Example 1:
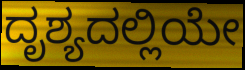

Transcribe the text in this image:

ದೃಶ್ಯದಲ್ಲಿಯೇ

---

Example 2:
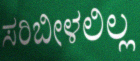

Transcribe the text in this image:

ಸರಿಬೀಳಲಿಲ್ಲ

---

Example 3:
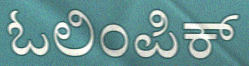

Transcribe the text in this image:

ಓಲಿಂಪಿಕ್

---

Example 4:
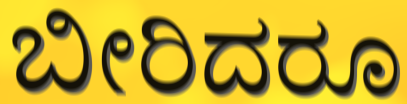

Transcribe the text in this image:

ಬೀರಿದರೂ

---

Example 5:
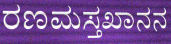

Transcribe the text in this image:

ರಣಮಸ್ತಖಾನನ